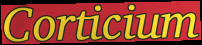
Corticium